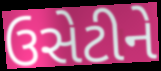
ઉસેટીને